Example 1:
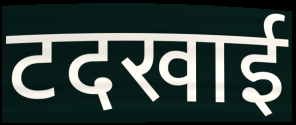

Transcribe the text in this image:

टदखाई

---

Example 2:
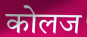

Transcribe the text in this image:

कोलज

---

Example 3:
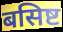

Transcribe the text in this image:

बसिष्ट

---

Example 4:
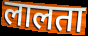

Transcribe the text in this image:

लालता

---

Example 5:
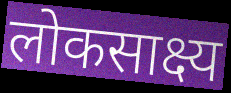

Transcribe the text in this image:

लोकसाक्ष्य